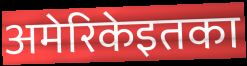
अमेरिकेइतका